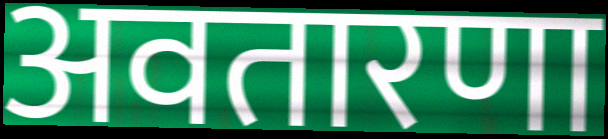
अवतारणा